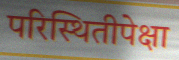
परिस्थितीपेक्षा